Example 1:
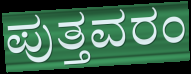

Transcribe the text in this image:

ಪುತ್ತವರಂ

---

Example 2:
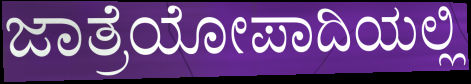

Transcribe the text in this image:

ಜಾತ್ರೆಯೋಪಾದಿಯಲ್ಲಿ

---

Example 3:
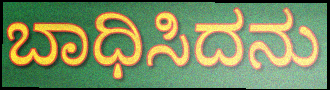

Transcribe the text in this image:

ಬಾಧಿಸಿದನು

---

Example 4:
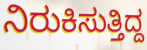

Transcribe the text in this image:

ನಿರುಕಿಸುತ್ತಿದ್ದ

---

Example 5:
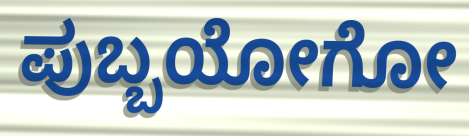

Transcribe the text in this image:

ಪುಬ್ಬಯೋಗೋ